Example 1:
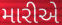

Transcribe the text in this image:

મારીએ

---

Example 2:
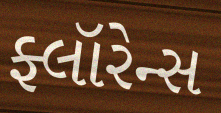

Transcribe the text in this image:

ફ્લૉરેન્સ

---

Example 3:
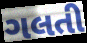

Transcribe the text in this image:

ગલતી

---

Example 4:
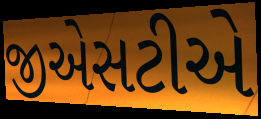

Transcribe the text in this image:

જીએસટીએ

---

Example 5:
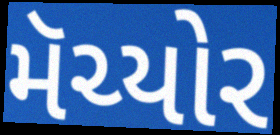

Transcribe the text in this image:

મૅચ્યોર